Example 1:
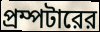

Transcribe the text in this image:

প্রম্পটারের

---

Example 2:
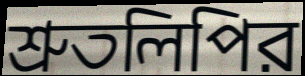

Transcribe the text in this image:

শ্রুতলিপির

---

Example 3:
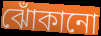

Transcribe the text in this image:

ঝোঁকানো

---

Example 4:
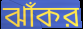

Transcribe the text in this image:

ঝাঁকর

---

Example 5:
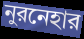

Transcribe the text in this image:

নুরনেহার